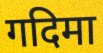
गदिमा